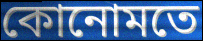
কোনোমতে